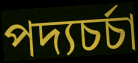
পদ্যচর্চা